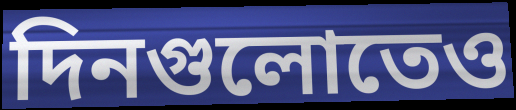
দিনগুলোতেও